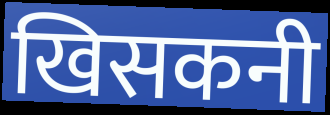
खिसकनी